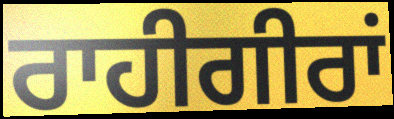
ਰਾਹੀਗੀਰਾਂ